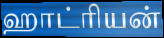
ஹாட்ரியன்